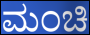
ಮಂಚಿ